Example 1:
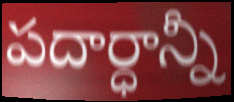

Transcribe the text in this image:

పదార్ధాన్నీ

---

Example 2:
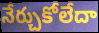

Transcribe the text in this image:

నేర్చుకోలేదా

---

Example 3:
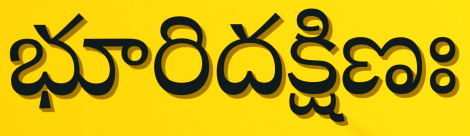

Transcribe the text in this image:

భూరిదక్షిణః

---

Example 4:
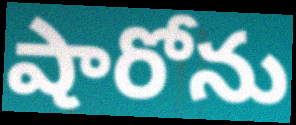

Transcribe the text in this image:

షారోను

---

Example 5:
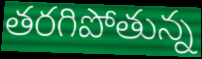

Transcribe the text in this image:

తరగిపోతున్న